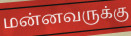
மன்னவருக்கு